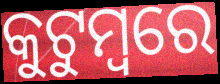
କୁଟୁମ୍ଵରେ